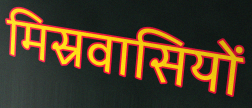
मिस्रवासियों